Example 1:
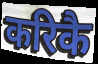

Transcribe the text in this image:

करिकै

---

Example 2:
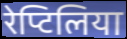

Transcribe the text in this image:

रेप्टिलिया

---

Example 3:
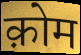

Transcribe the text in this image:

क़ोम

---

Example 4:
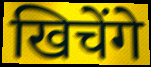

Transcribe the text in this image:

खिचेंगे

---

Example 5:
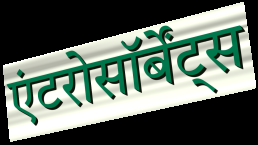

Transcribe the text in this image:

एंटरोसॉर्बेंट्स